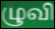
ழுவி